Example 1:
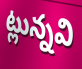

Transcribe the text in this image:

ట్లున్నవి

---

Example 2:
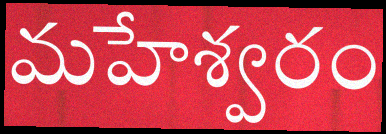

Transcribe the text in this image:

మహేశ్వరం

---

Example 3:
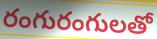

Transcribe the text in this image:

రంగురంగులతో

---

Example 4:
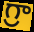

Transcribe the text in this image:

గ్రా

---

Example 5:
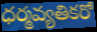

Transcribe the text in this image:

ధర్మవ్యతికరో